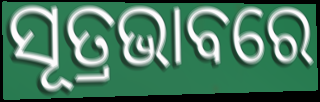
ସୂତ୍ରଭାବରେ